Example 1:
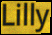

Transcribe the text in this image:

Lilly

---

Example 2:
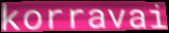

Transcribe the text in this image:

korravai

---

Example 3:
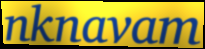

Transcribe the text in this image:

nknavam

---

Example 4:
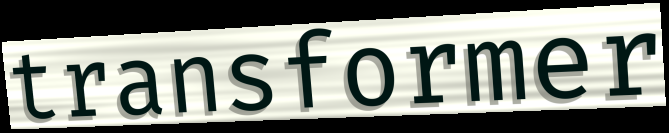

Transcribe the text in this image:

transformer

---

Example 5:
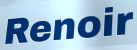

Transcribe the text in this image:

Renoir